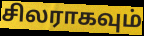
சிலராகவும்